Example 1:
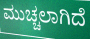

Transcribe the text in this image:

ಮುಚ್ಚಲಾಗಿದೆ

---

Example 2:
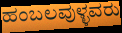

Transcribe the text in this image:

ಹಂಬಲವುಳ್ಳವರು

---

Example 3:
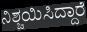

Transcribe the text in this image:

ನಿಶ್ಚಯಿಸಿದ್ದಾರೆ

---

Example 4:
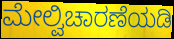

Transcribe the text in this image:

ಮೇಲ್ವಿಚಾರಣೆಯಡಿ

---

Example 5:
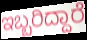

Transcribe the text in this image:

ಇಬ್ಬರಿದ್ದಾರೆ